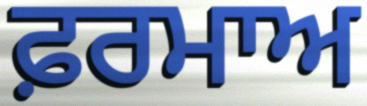
ਫ਼ਰਮਾਅ